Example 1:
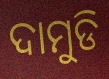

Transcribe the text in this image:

ଦାମୁଡି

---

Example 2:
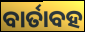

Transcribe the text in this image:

ବାର୍ତାବହ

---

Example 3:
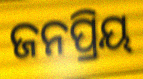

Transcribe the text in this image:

ଜନପ୍ରିୟ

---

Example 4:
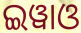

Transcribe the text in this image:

ଇୱାଓ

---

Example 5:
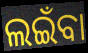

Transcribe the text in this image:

ଲଇଁବା